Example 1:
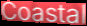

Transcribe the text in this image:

Coastal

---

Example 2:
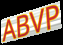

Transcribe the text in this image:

ABVP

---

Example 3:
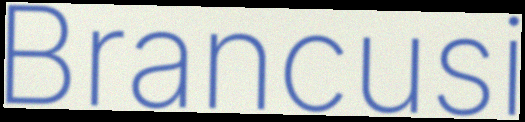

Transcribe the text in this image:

Brancusi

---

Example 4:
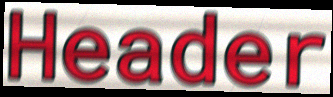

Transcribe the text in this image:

Header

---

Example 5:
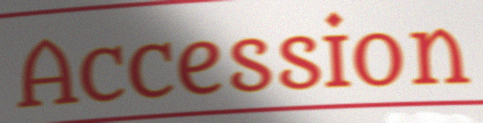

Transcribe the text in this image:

Accession